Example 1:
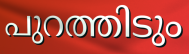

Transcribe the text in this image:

പുറത്തിടും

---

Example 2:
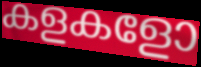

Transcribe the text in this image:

കളകളോ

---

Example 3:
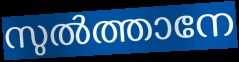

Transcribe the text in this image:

സുൽത്താനേ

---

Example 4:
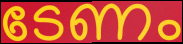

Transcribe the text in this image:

ടേണം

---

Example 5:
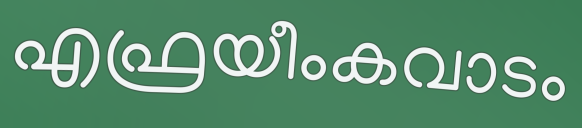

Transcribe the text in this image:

എഫ്രയീംകവാടം